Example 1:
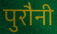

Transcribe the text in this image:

पुरौनी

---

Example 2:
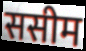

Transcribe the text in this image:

ससीम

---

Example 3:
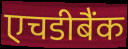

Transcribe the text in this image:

एचडीबैंक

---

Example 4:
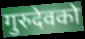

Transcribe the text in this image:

गुरुदेवको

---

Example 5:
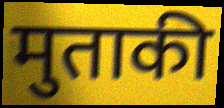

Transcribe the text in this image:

मुताकी